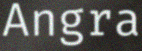
Angra